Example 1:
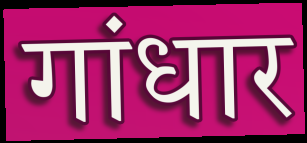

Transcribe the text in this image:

गांधार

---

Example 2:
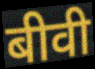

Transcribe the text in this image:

बीवी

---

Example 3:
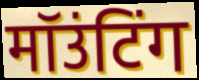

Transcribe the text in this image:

मॉउंटिंग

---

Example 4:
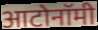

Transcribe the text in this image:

आटोनॉमी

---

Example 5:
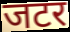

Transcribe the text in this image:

जटर